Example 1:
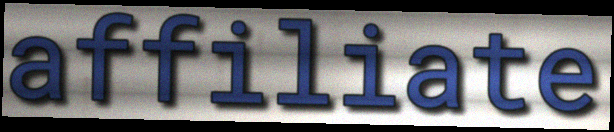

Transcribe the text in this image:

affiliate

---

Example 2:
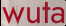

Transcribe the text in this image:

wuta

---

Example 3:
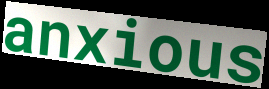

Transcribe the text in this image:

anxious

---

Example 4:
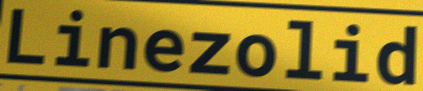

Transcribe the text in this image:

Linezolid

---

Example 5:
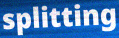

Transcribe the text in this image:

splitting